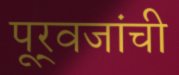
पूर्वजांची